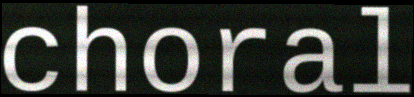
choral